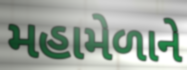
મહામેળાને